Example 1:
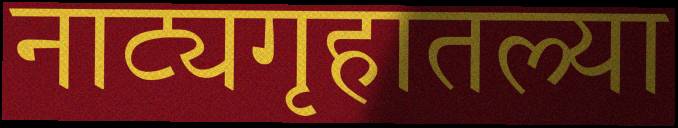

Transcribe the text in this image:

नाट्यगृहातल्या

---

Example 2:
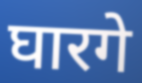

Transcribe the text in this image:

घारगे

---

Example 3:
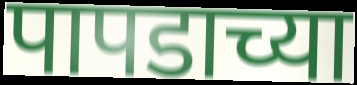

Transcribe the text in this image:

पापडाच्या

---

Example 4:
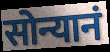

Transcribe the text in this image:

सोन्यानं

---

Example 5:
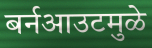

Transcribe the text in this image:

बर्नआउटमुळे